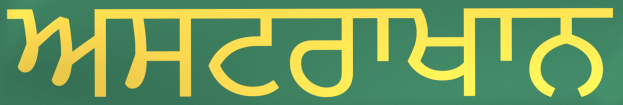
ਅਸਟਰਾਖਾਨ